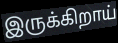
இருக்கிறாய்